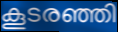
കൂടരഞ്ഞി